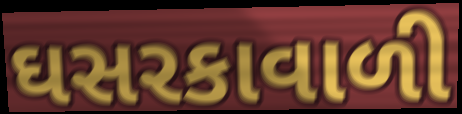
ઘસરકાવાળી